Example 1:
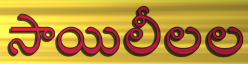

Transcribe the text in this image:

సాయిలీలల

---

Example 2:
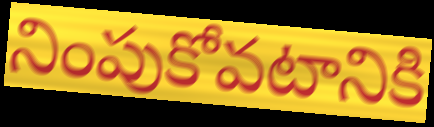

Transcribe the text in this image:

నింపుకోవటానికి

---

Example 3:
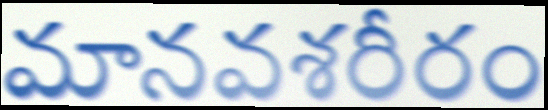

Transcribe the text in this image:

మానవశరీరం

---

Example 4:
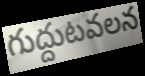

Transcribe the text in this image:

గుద్దుటవలన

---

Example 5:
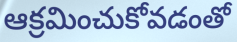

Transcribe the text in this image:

ఆక్రమించుకోవడంతో